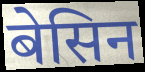
बेसिन